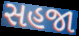
સહજા